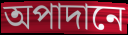
অপাদানে